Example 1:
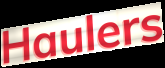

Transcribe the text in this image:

Haulers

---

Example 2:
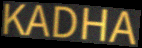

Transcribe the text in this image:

KADHA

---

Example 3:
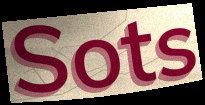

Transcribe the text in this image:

Sots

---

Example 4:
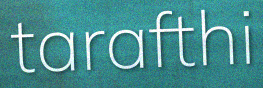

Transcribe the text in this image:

tarafthi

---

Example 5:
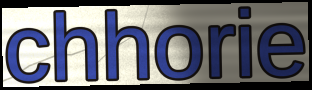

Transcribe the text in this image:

chhorie